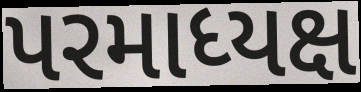
પરમાધ્યક્ષ